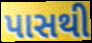
પાસથી